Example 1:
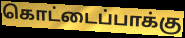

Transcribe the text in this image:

கொட்டைப்பாக்கு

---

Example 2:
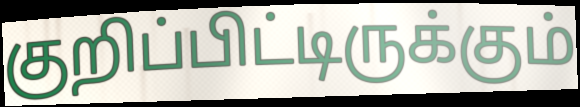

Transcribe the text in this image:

குறிப்பிட்டிருக்கும்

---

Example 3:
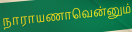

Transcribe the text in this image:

நாராயணாவென்னும்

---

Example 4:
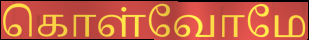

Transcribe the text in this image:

கொள்வோமே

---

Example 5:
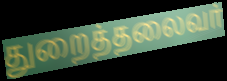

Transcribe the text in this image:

துறைத்தலைவர்